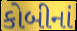
કોબીનાં